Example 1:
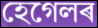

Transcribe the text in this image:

হেগেলৰ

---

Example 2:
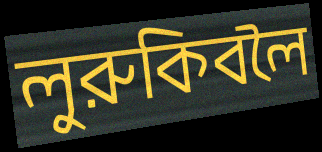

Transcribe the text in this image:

লুৰুকিবলৈ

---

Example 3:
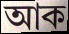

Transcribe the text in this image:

আক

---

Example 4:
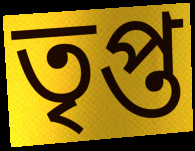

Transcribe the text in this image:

তৃপ্ত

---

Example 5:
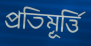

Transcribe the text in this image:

প্ৰতিমূৰ্ত্তি